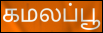
கமலப்பூ